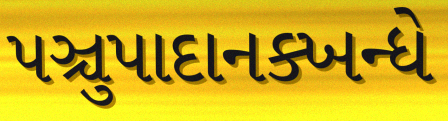
પઞ્ચુપાદાનક્ખન્ધે